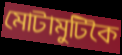
মোটামুটিকৈ